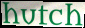
hutch